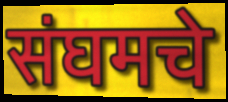
संघमचे